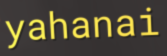
yahanai